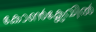
കോൺക്ലേവിൽ